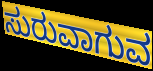
ಸುರುವಾಗುವ